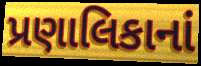
પ્રણાલિકાનાં